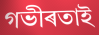
গভীৰতাই